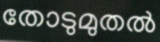
തോടുമുതൽ